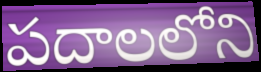
పదాలలోని